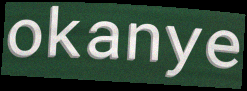
okanye